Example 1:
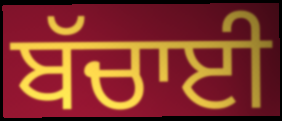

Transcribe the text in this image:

ਬੱਚਾਈ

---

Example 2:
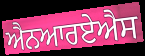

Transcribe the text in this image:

ਐਨਆਰਏਐਸ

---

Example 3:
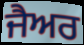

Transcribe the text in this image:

ਜੈਅਰ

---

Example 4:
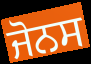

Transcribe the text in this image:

ਜੋਨਸ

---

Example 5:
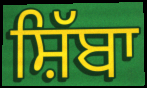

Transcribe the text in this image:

ਸ਼ਿੱਬਾ